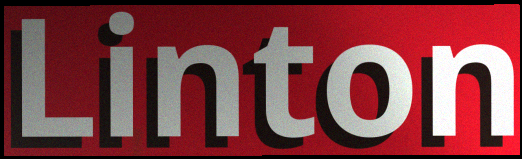
Linton